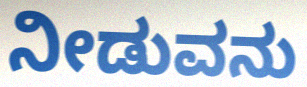
ನೀಡುವನು